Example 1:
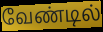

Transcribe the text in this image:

வேண்டில்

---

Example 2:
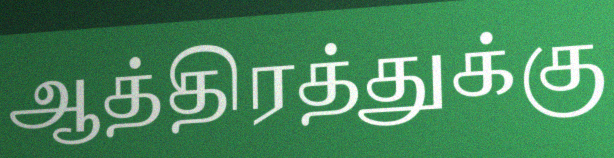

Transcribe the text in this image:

ஆத்திரத்துக்கு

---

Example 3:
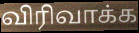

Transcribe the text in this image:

விரிவாக்க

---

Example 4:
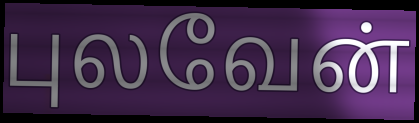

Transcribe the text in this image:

புலவேன்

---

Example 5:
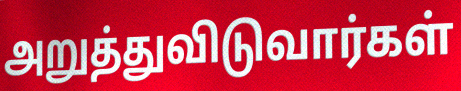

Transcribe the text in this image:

அறுத்துவிடுவார்கள்